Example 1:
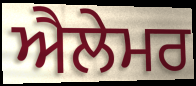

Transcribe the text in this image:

ਐਲੇਮਰ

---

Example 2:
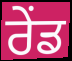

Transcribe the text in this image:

ਰੇਂਡ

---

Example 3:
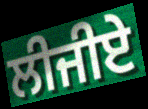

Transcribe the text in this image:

ਲੀਜੀਏ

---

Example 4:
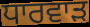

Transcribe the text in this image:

ਧਾਰਵਾੜ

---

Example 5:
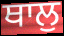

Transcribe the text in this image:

ਥਾਲੁ